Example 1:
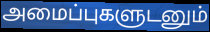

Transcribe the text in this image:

அமைப்புகளுடனும்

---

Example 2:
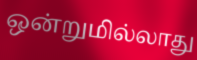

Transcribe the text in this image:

ஒன்றுமில்லாது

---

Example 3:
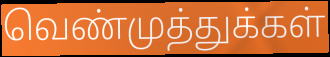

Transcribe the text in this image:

வெண்முத்துக்கள்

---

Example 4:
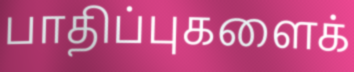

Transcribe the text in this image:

பாதிப்புகளைக்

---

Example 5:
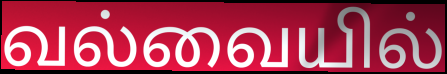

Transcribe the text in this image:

வல்வையில்